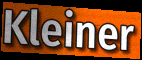
Kleiner